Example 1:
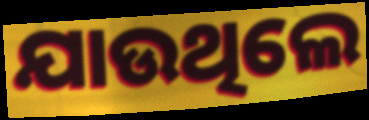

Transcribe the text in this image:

ଯାଉଥିଲେ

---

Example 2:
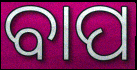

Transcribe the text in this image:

ବାପ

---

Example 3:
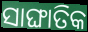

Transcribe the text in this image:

ସାଙ୍ଘାତିକ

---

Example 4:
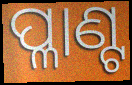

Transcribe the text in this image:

ପ୍ଳାଣ୍ଟ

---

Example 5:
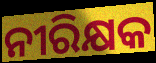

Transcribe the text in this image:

ନୀରିକ୍ଷକ